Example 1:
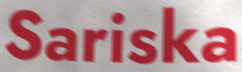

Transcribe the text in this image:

Sariska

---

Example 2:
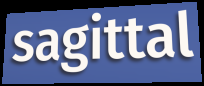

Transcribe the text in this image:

sagittal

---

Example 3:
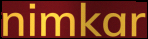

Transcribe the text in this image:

nimkar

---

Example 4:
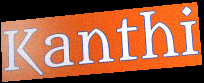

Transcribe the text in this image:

Kanthi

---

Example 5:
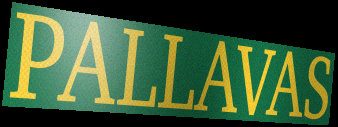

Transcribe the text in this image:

PALLAVAS